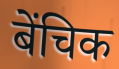
बेंचिक